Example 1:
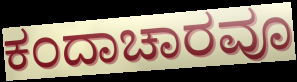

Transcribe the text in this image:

ಕಂದಾಚಾರವೂ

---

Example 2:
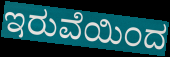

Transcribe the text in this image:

ಇರುವೆಯಿಂದ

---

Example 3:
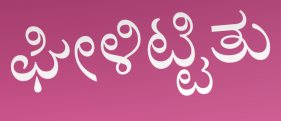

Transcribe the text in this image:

ಘೀಳಿಟ್ಟಿತು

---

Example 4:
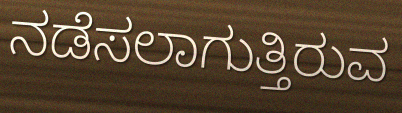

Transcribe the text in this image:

ನಡೆಸಲಾಗುತ್ತಿರುವ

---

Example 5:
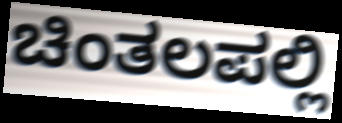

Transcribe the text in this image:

ಚಿಂತಲಪಲ್ಲಿ